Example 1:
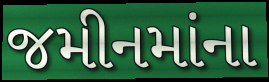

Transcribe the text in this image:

જમીનમાંના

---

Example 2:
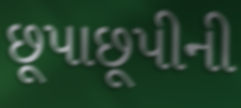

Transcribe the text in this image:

છૂપાછૂપીની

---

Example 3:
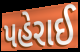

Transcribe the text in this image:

પહેરાઈ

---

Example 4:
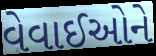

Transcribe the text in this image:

વેવાઈઓને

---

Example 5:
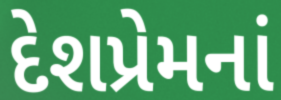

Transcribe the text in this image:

દેશપ્રેમનાં